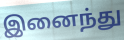
இனைந்து